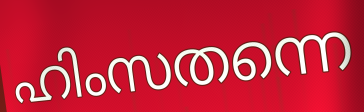
ഹിംസതന്നെ